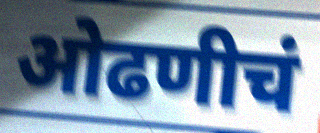
ओढणीचं